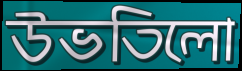
উভতিলো